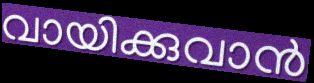
വായിക്കുവാൻ